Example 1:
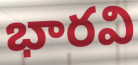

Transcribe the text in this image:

భారవి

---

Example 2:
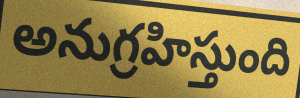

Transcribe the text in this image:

అనుగ్రహిస్తుంది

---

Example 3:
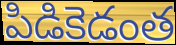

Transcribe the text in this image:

పిడికెడంత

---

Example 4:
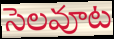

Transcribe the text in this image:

సెలవూట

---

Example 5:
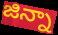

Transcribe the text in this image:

జిన్నా